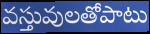
వస్తువులతోపాటు